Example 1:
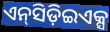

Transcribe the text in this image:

ଏନ୍‍ସିଡ଼ିଇଏକ୍ସ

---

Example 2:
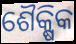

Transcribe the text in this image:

ଶୈକ୍ଷିକ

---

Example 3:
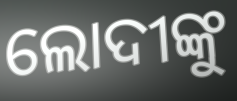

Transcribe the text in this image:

ଲୋଦୀଙ୍କୁ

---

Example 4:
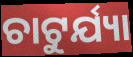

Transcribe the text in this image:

ଚାଟୁର୍ଯ୍ୟା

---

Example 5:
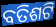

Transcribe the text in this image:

ବତିଶଟି